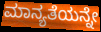
ಮಾನ್ಯತೆಯನ್ನೇ